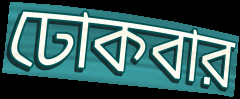
ঢোকবার